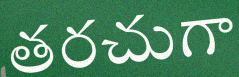
తరచుగా